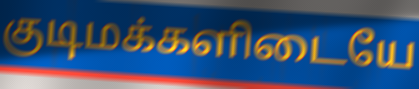
குடிமக்களிடையே